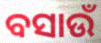
ବସାଉଁ